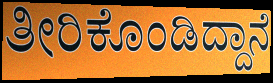
ತೀರಿಕೊಂಡಿದ್ದಾನೆ